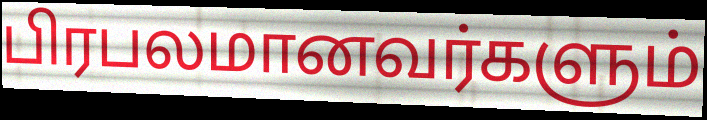
பிரபலமானவர்களும்